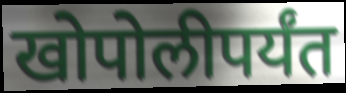
खोपोलीपर्यंत